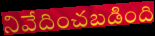
నివేదించబడింది